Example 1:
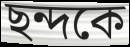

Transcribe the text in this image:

ছন্দকে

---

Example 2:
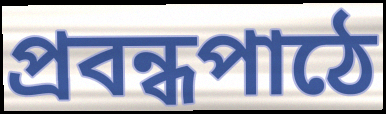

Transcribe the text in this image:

প্রবন্ধপাঠে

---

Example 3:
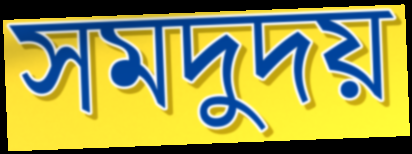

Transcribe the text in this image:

সমদুদয়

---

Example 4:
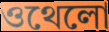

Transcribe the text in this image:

ওথেলো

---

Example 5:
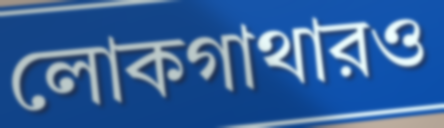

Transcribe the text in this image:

লোকগাথারও